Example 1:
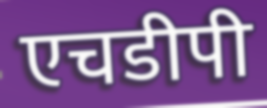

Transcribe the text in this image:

एचडीपी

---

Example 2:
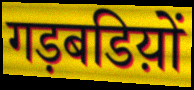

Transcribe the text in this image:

गड़बडिय़ों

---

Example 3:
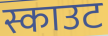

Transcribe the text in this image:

स्काउट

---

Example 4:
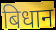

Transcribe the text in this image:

बिधान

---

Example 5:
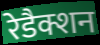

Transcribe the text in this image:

रेडैक्शन